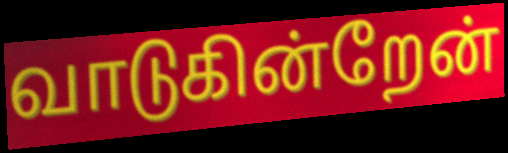
வாடுகின்றேன்